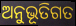
ଅନୁଭୂତିଗତ